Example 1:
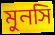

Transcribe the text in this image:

মুনসি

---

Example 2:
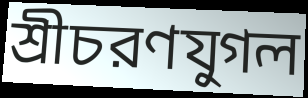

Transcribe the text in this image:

শ্রীচরণযুগল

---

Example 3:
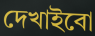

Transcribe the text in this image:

দেখাইবো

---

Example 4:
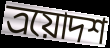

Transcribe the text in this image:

ত্রয়োদশ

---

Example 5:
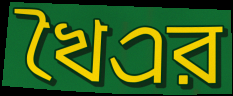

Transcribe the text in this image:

খৈএর